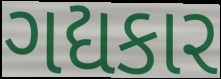
ગદ્યકાર